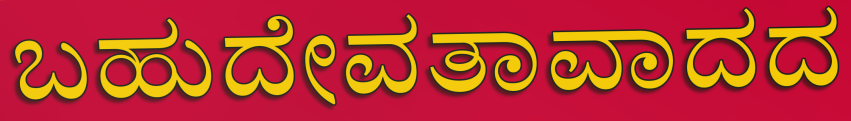
ಬಹುದೇವತಾವಾದದ